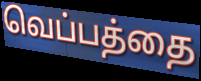
வெப்பத்தை